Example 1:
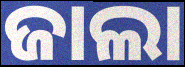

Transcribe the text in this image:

ଜାଲା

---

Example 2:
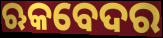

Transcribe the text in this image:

ଋକବେଦର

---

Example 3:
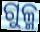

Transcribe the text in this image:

ଗୁଳ୍ମ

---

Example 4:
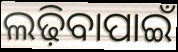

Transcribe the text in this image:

ଲଢ଼ିବାପାଇଁ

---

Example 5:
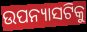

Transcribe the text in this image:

ଉପନ୍ୟାସଟିକୁ